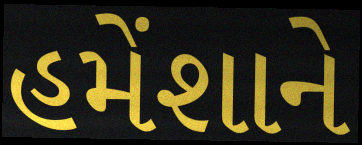
હમેંશાને